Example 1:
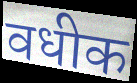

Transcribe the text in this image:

वधीक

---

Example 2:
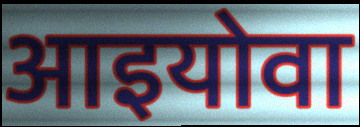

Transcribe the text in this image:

आइयोवा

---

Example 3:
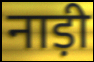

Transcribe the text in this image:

नाड़ी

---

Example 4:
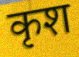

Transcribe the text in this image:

कृश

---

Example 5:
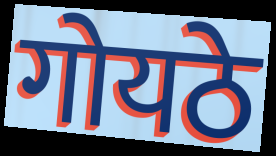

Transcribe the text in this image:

गोयठे